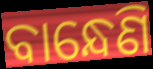
ବାନ୍ଧେଣି